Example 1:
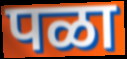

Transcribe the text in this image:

पळा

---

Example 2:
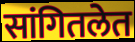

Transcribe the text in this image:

सांगितलेत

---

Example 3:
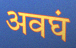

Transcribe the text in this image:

अवघं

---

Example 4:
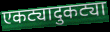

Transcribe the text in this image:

एकट्यादुकट्या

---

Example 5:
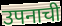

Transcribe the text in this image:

उपनाची